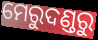
ମେରୁଦଣ୍ଡରୁ